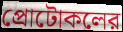
প্রোটোকলের